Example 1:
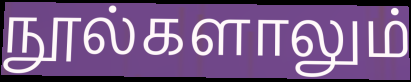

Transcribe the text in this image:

நூல்களாலும்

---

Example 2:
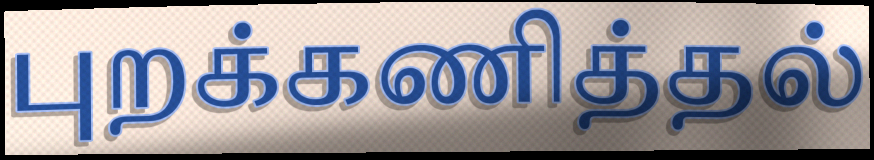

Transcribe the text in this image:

புறக்கணித்தல்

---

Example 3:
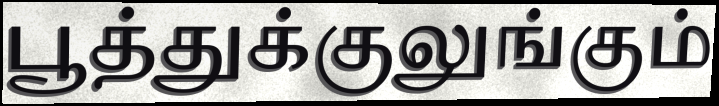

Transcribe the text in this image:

பூத்துக்குலுங்கும்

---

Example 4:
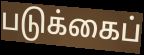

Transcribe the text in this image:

படுக்கைப்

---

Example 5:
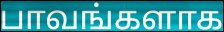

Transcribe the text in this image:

பாவங்களாக